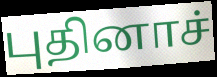
புதினாச்